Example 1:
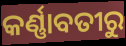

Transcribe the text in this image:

କର୍ଣ୍ଣାବତୀରୁ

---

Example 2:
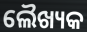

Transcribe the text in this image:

ଲୈଖ୍ୟକ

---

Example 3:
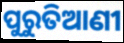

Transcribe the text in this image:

ପୁରୁତିଆଣୀ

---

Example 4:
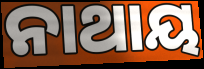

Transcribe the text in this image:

ନାଥାୟ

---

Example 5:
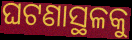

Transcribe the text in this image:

ଘଟଣାସ୍ଥଳକୁ